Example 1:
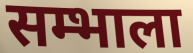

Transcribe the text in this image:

सम्भाला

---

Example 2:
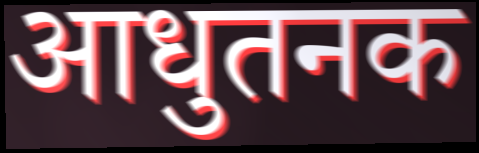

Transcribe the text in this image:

आधुतनक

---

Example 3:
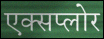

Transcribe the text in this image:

एक्सप्लोर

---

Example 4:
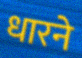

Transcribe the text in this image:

धारने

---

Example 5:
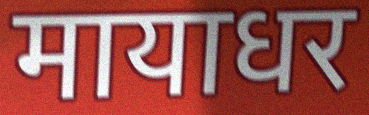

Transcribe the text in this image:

मायाधर